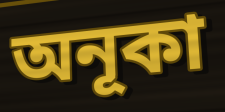
অনূকা